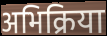
अभिक्रिया